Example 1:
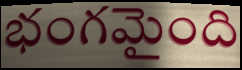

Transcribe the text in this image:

భంగమైంది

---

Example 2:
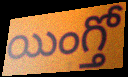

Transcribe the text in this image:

యింగ్తో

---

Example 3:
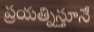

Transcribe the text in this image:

ప్రయత్నిస్తూనే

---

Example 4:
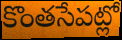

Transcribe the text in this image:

కొంతసేపట్లో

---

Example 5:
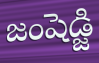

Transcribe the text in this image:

జంషెడ్జి